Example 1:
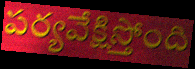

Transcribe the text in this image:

పర్యవేక్షిస్తోంది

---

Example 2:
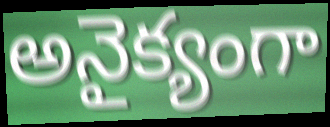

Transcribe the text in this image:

అనైక్యంగా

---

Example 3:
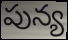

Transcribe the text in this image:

పున్య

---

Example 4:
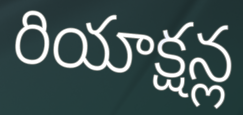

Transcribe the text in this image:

రియాక్షన్ల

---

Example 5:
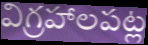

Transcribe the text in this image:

విగ్రహాలపట్ల